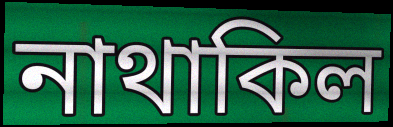
নাথাকিল